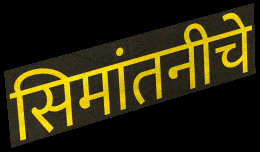
सिमांतनीचे